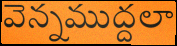
వెన్నముద్దలా